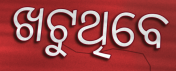
ଖଟୁଥିବେ